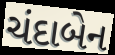
ચંદાબેન